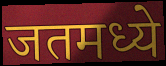
जतमध्ये